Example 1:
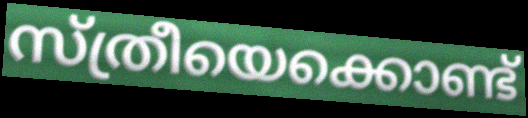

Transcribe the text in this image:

സ്ത്രീയെക്കൊണ്ട്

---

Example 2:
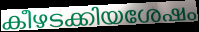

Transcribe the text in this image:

കീഴടക്കിയശേഷം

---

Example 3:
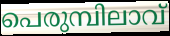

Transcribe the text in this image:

പെരുമ്പിലാവ്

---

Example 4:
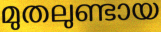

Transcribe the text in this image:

മുതലുണ്ടായ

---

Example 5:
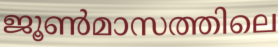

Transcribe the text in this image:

ജൂൺമാസത്തിലെ